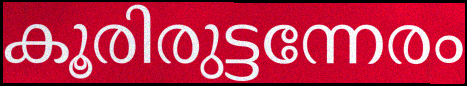
കൂരിരുട്ടന്നേരം